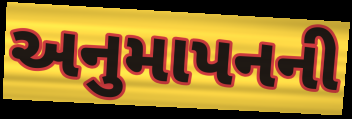
અનુમાપનની